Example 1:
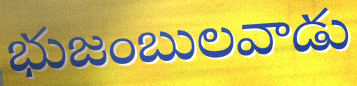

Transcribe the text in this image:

భుజంబులవాడు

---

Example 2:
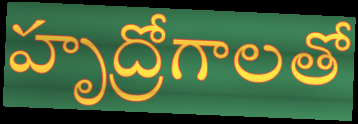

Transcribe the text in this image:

హృద్రోగాలతో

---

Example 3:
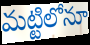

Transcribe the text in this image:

మట్టిలోనూ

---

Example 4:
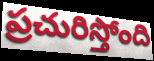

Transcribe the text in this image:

ప్రచురిస్తోంది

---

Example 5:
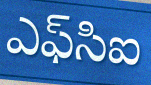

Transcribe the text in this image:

ఎఫ్‌సిఐ